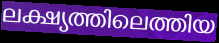
ലക്ഷ്യത്തിലെത്തിയ